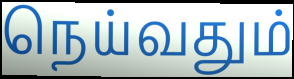
நெய்வதும்